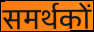
समर्थकों